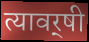
त्यावर्षी